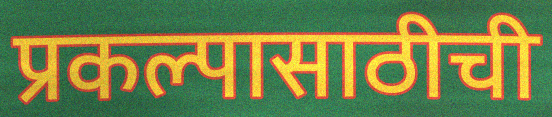
प्रकल्पासाठीची